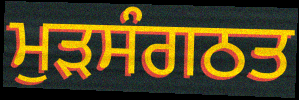
ਮੁੜਸੰਗਠਤ